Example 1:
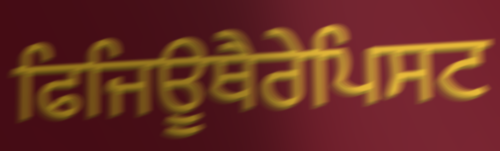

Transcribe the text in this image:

ਫਿਜਿਊਥੈਰੇਪਿਸਟ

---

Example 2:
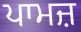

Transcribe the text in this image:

ਪਾਮਜ਼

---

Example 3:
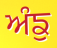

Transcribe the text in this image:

ਅੰਙੁ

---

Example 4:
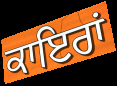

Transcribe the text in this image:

ਕਾਇਰਾਂ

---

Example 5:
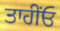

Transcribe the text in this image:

ਤਾਹੀਂਓ